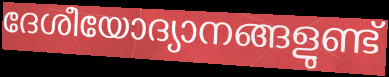
ദേശീയോദ്യാനങ്ങളുണ്ട്